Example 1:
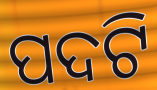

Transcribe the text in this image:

ପଦଟି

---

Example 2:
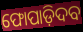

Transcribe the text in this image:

ଫୋପାଡ଼ିଦବ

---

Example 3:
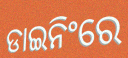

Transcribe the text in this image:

ଡାଇନିଂରେ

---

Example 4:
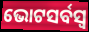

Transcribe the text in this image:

ଭୋଟସର୍ବସ୍ବ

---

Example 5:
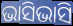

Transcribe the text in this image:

ଭାସିଭାସି